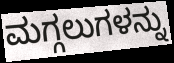
ಮಗ್ಗಲುಗಳನ್ನು